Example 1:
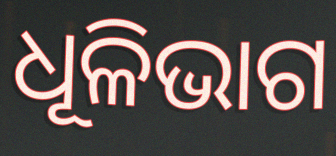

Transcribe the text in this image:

ଧୂଳିଭାଗ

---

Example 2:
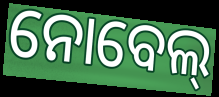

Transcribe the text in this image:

ନୋବେଲ୍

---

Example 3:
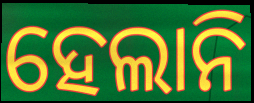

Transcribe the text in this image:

ହେଲାନି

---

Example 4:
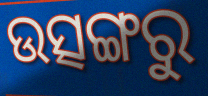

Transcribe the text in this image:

ଉତ୍ସଙ୍ଗରୁ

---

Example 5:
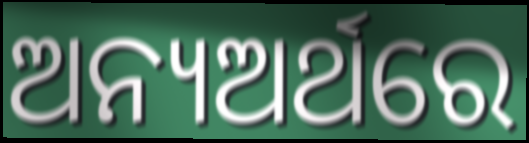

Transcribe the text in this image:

ଅନ୍ୟଅର୍ଥରେ